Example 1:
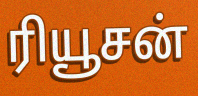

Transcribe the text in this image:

ரியூசன்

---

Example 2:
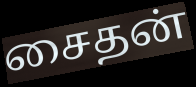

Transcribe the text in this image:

சைதன்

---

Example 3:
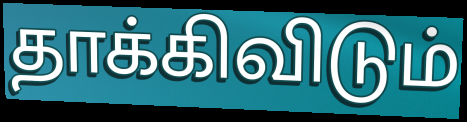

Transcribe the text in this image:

தாக்கிவிடும்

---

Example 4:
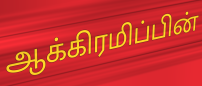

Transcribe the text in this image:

ஆக்கிரமிப்பின்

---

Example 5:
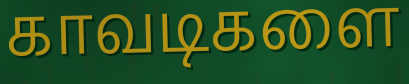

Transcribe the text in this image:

காவடிகளை